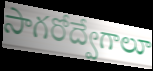
సాగరోద్వేగాలూ